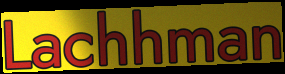
Lachhman